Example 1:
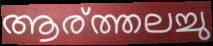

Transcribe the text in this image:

ആര്ത്തലച്ചു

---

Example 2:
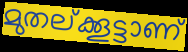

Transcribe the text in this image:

മുതല്ക്കൂട്ടാണ്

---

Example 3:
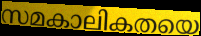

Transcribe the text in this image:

സമകാലികതയെ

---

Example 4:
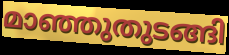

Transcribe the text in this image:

മാഞ്ഞുതുടങ്ങി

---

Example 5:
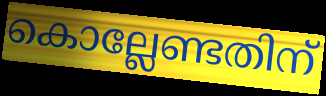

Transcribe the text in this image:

കൊല്ലേണ്ടതിന്